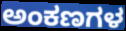
ಅಂಕಣಗಳ